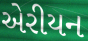
એરીયન